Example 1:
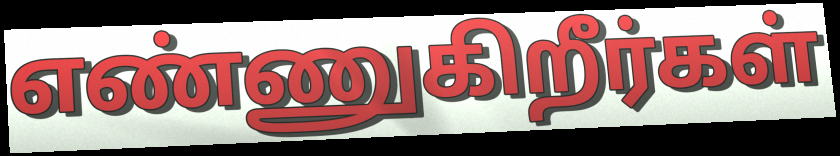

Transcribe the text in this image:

எண்ணுகிறீர்கள்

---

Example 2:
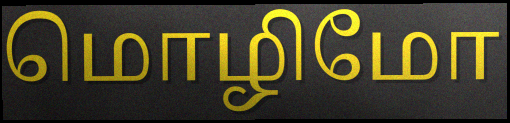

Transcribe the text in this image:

மொழிமோ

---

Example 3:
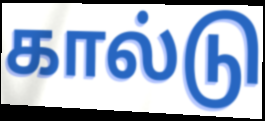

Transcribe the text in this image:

கால்டு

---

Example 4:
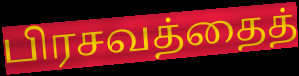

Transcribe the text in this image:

பிரசவத்தைத்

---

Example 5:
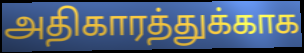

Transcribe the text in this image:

அதிகாரத்துக்காக